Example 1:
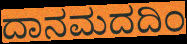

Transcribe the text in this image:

ದಾನಮದದಿಂ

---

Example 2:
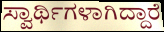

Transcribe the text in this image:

ಸ್ವಾರ್ಥಿಗಳಾಗಿದ್ದಾರೆ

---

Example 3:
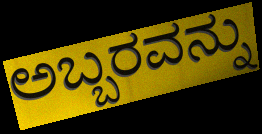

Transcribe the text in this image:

ಅಬ್ಬರವನ್ನು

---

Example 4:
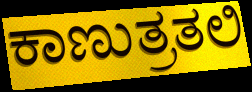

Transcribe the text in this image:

ಕಾಣುತ್ರತಲಿ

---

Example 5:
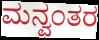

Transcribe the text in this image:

ಮನ್ವಂತರ